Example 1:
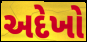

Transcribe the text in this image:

અદેખો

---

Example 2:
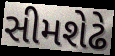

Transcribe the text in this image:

સીમશેઢે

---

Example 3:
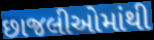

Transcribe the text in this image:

છાજલીઓમાંથી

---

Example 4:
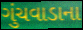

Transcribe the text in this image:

ગુંચવાડાના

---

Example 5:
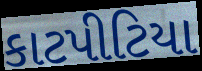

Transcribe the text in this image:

કાટપીટિયા